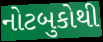
નોટબુકોથી